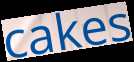
cakes